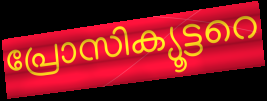
പ്രോസിക്യൂട്ടറെ